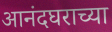
आनंदघराच्या